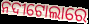
ନଦୀଟୋଲାରେ